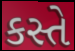
કસ્તે